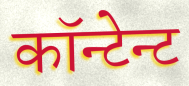
कॉन्टेन्ट